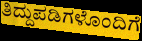
ತಿದ್ದುಪಡಿಗಳೊಂದಿಗೆ